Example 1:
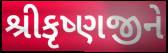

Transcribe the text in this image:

શ્રીકૃષ્ણજીને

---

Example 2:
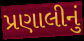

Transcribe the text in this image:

પ્રણાલીનું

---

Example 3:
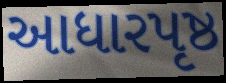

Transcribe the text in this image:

આધારપૃષ્ઠ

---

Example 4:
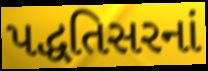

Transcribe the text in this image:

પદ્ધતિસરનાં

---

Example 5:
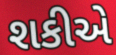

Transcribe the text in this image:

શકીએ